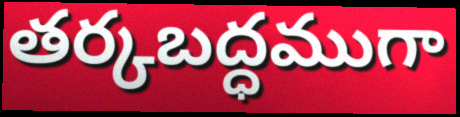
తర్కబద్ధముగా